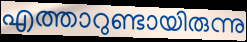
എത്താറുണ്ടായിരുന്നു